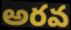
అరవ